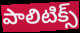
పాలిటిక్స్